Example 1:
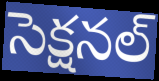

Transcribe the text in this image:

సెక్షనల్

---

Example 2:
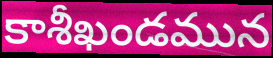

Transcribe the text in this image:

కాశీఖండమున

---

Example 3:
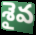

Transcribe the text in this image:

శైవ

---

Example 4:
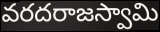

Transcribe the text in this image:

వరదరాజస్వామి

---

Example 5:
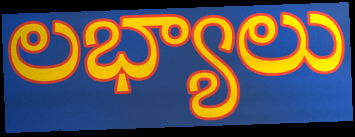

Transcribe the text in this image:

లభ్యాలు